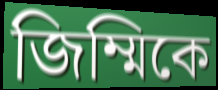
জিম্মিকে